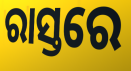
ରାସ୍ତରେ